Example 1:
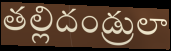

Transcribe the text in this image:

తల్లిదండ్రులా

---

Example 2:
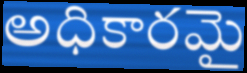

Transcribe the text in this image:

అధికారమై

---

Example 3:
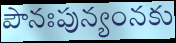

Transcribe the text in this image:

పౌనఃపున్యంనకు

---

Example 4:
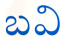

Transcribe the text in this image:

బవి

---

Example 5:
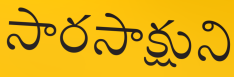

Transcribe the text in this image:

సారసాక్షుని